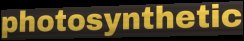
photosynthetic